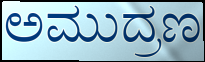
ಅಮುದ್ರಣ